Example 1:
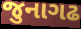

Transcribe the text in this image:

જુનાગઢ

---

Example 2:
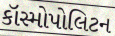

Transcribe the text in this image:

કૉસ્મોપોલિટન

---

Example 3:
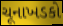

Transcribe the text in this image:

ચૂનાખડકો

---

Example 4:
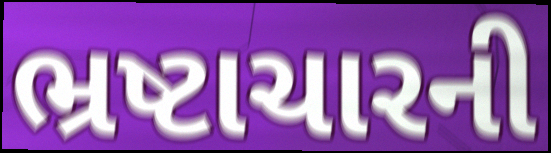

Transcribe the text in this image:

ભ્રષ્ટાચારની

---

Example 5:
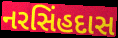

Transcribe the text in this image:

નરસિંહદાસ